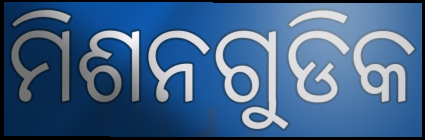
ମିଶନଗୁଡିକ